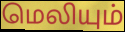
மெலியும்